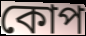
কোপ